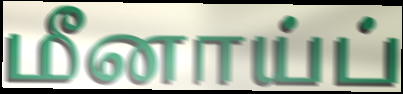
மீனாய்ப்